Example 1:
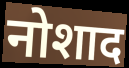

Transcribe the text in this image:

नोशाद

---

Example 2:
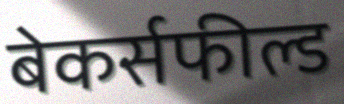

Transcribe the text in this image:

बेकर्सफील्ड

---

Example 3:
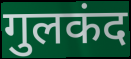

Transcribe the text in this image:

गुलकंद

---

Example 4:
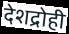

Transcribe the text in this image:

देशद्रोही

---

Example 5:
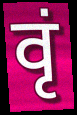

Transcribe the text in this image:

वृं